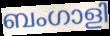
ബംഗാളി